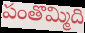
పంతొమ్మిది